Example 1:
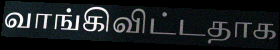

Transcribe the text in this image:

வாங்கிவிட்டதாக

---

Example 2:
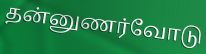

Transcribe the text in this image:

தன்னுணர்வோடு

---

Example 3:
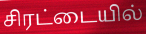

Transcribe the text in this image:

சிரட்டையில்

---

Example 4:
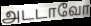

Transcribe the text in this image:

அடடாவோ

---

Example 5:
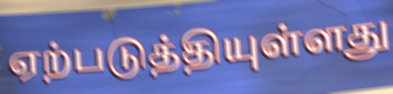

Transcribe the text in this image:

ஏற்படுத்தியுள்ளது